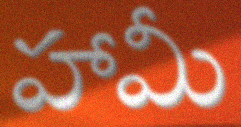
హామీ